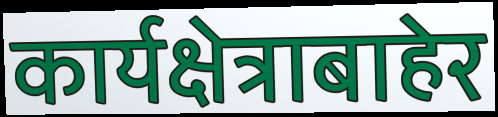
कार्यक्षेत्राबाहेर